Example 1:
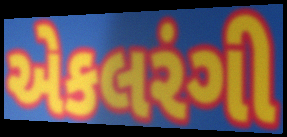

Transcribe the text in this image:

એકલરંગી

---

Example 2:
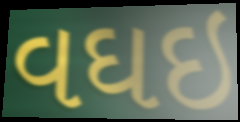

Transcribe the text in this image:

વઘઇ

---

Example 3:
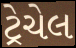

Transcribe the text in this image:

ટ્રેચેલ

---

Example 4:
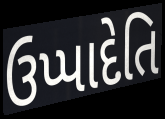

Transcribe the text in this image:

ઉપ્પાદેતિ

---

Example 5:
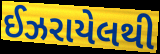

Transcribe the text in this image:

ઈઝરાયેલથી